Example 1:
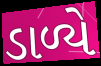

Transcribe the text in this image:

ડાળ્યે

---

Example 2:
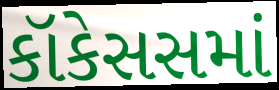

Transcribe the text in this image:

કૉકેસસમાં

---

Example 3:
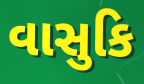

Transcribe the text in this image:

વાસુકિ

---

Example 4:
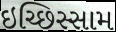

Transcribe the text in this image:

ઇચ્છિસ્સામ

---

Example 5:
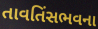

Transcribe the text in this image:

તાવતિંસભવના